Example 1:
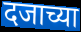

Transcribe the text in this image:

दजाच्या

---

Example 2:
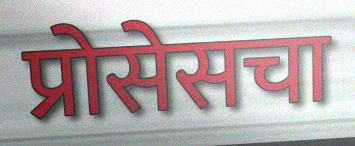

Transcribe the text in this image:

प्रोसेसचा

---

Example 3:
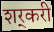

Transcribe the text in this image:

शर्करी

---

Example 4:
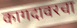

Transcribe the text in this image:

कागदावरचा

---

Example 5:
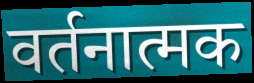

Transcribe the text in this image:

वर्तनात्मक